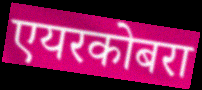
एयरकोबरा